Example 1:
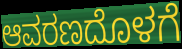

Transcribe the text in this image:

ಆವರಣದೊಳಗೆ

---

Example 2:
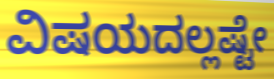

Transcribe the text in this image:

ವಿಷಯದಲ್ಲಷ್ಟೇ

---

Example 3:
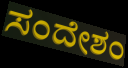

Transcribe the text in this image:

ಸಂದೇಶಂ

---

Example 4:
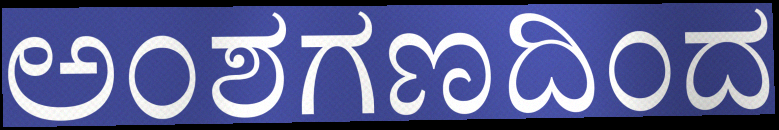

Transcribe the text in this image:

ಅಂಶಗಣದಿಂದ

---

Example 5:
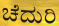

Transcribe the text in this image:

ಚೆದುರಿ